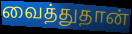
வைத்துதான்